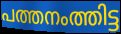
പത്തനംത്തിട്ട